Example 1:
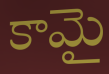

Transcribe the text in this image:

కామై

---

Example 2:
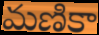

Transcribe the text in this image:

మణికా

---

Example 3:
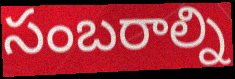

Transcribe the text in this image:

సంబరాల్ని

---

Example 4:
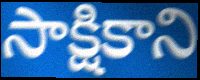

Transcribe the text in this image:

సాక్షికాని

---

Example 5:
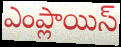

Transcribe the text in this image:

ఎంప్లాయిస్